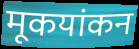
मूकयांकन